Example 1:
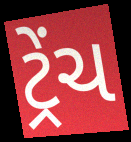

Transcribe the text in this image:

ટ્રેંચ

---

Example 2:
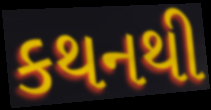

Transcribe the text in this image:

કથનથી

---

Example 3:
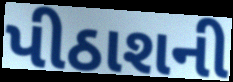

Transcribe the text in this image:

પીઠાશની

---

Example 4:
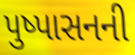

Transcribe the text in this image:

પુષ્પાસનની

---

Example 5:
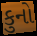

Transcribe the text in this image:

કુનો